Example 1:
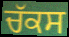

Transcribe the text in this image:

ਚੱਕਸ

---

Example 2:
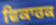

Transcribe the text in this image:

ਵਿਕਾਰਕ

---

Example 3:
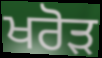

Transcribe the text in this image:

ਖਰੋੜ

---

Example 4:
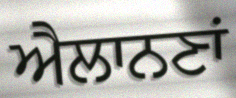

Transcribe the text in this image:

ਐਲਾਨਣਾਂ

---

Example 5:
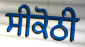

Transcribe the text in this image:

ਸੀਕੋਠੀ